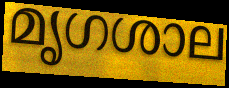
മൃഗശാല